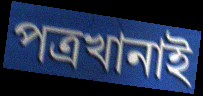
পত্রখানাই